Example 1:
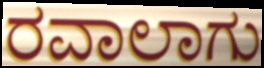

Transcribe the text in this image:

ರವಾಲಾಗು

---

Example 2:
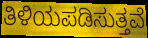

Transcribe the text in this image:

ತಿಳಿಯಪಡಿಸುತ್ತವೆ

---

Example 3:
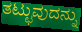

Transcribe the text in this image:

ತಟ್ಟುವುದನ್ನು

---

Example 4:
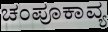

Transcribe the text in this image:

ಚಂಪೂಕಾವ್ಯ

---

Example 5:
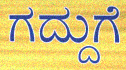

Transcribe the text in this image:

ಗದ್ದುಗೆ